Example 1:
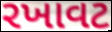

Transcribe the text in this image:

રખાવટ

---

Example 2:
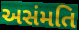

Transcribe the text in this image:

અસંમતિ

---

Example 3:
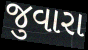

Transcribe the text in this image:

જુવારા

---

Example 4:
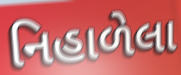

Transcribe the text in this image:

નિહાળેલા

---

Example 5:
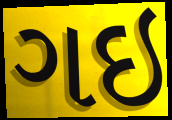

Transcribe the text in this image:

ગઇ